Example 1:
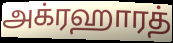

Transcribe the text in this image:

அக்ரஹாரத்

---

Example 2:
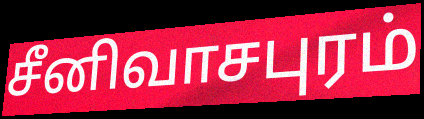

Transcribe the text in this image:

சீனிவாசபுரம்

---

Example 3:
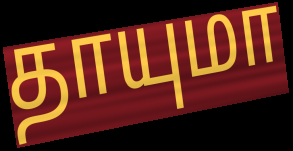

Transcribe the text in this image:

தாயுமா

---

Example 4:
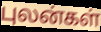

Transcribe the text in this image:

புலன்கள்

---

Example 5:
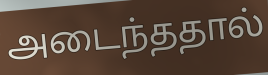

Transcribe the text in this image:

அடைந்ததால்